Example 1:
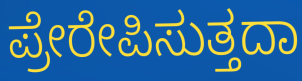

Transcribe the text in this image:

ಪ್ರೇರೇಪಿಸುತ್ತದಾ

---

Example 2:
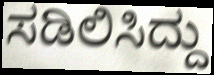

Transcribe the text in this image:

ಸಡಿಲಿಸಿದ್ದು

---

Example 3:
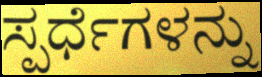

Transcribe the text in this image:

ಸ್ಪರ್ಧೆಗಳನ್ನು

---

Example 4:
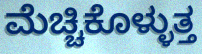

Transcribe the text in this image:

ಮೆಚ್ಚಿಕೊಳ್ಳುತ್ತ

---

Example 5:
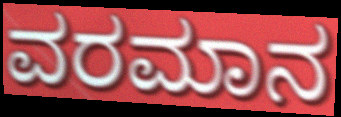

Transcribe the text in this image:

ವರಮಾನ